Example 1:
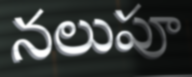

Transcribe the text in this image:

నలుపూ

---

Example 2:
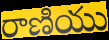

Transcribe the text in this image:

రాణియు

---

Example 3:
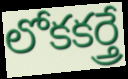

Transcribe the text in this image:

లోకకర్త్రే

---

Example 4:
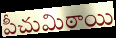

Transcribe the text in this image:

పీచుమిఠాయి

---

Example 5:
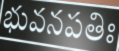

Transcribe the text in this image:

భువనపతిః